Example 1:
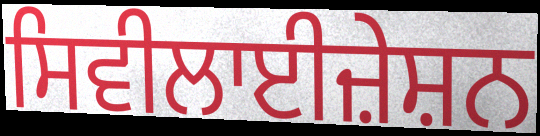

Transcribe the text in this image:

ਸਿਵੀਲਾਈਜ਼ੇਸ਼ਨ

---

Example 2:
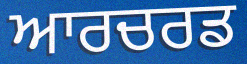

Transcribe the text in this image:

ਆਰਚਰਡ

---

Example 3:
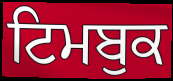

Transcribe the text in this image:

ਟਿਮਬੁਕ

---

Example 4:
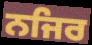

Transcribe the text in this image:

ਨਜਿਰ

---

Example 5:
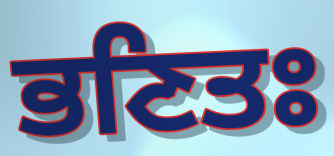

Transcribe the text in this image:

ਭਣਿਤਃ